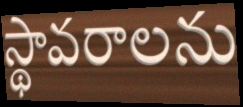
స్థావరాలను